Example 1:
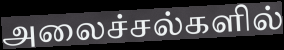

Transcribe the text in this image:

அலைச்சல்களில்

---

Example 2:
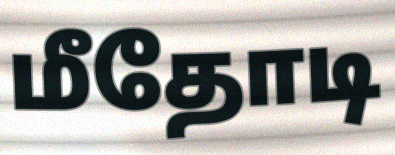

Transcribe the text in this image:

மீதோடி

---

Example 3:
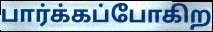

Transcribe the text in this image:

பார்க்கப்போகிற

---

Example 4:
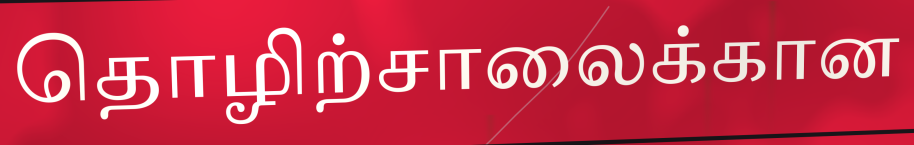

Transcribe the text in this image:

தொழிற்சாலைக்கான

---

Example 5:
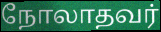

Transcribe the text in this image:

நோலாதவர்